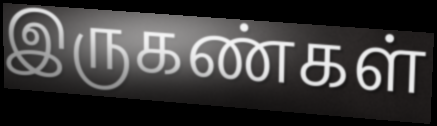
இருகண்கள்